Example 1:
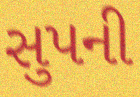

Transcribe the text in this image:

સુપની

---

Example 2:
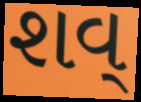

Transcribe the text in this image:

શવ્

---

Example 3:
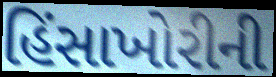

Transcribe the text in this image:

હિંસાખોરીની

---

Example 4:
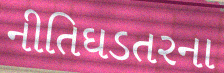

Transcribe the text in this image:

નીતિઘડતરના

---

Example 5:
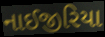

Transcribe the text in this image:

નાઈજીરિયા